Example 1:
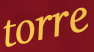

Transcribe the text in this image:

torre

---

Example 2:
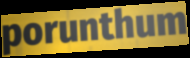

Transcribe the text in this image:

porunthum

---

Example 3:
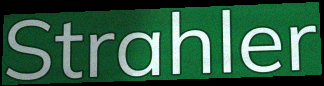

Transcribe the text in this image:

Strahler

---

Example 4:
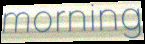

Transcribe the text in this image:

morning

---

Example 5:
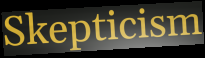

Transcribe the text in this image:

Skepticism